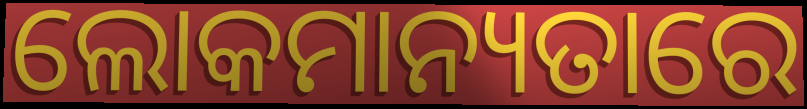
ଲୋକମାନ୍ୟତାରେ